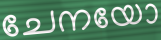
ചേനയോ